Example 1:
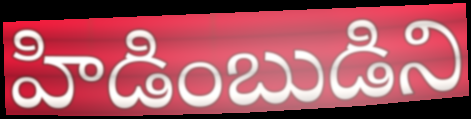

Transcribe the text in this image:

హిడింబుడిని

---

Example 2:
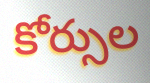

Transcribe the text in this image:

కోర్సుల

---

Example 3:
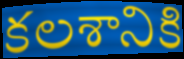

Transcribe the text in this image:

కలశానికి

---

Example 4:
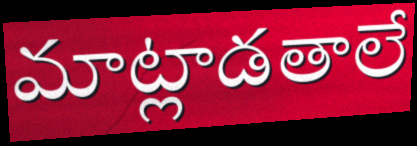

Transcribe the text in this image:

మాట్లాడతాలే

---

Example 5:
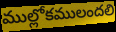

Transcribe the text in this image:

ముల్లోకములందలి